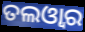
ତଲଓ୍ୱାର